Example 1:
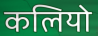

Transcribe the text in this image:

कलियो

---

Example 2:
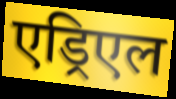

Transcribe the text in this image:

एड्रिएल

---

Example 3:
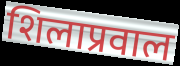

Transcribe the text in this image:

शिलाप्रवाल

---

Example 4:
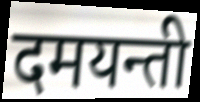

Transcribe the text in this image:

दमयन्ती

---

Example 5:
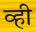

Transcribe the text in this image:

व्‍ही